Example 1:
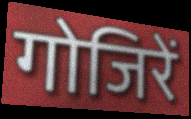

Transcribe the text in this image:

गोजिरें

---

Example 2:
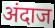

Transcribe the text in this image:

अंदाज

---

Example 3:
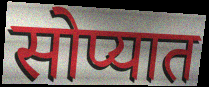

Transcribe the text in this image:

सोप्यात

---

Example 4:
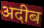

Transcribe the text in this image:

अदीब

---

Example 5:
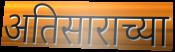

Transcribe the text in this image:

अतिसाराच्या